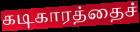
கடிகாரத்தைச்